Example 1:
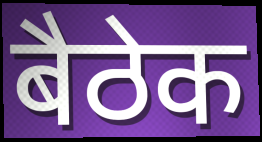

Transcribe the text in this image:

बैठेक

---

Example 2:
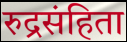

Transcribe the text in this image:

रुद्रसंहिता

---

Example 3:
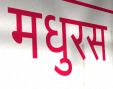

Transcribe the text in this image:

मधुरस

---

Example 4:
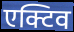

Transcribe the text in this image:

एक्टिव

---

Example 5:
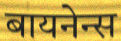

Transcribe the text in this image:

बायनेन्स